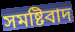
সমষ্টিবাদ